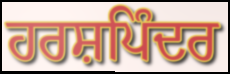
ਹਰਸ਼ਪਿੰਦਰ